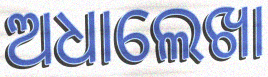
ଅଧାଲେଖା